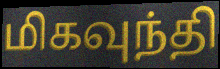
மிகவுந்தி